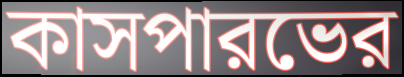
কাসপারভের